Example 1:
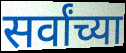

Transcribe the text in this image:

सर्वांच्या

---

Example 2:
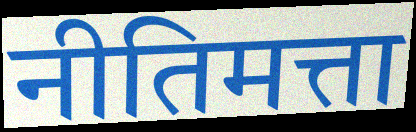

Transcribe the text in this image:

नीतिमत्ता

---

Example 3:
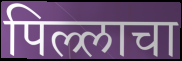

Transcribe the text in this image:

पिल्लाचा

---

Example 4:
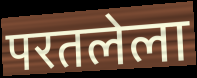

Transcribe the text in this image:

परतलेला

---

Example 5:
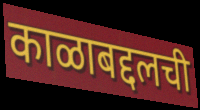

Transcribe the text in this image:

काळाबद्दलची